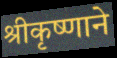
श्रीकृष्णाने